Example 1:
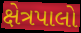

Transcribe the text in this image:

ક્ષેત્રપાલો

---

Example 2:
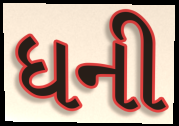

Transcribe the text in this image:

ધની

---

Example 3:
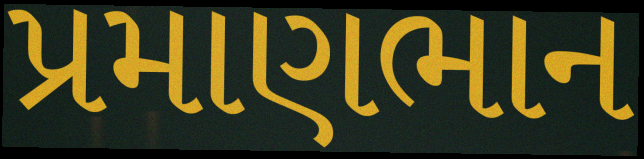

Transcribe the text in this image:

પ્રમાણભાન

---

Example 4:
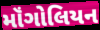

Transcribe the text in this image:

મૉંગોલિયન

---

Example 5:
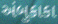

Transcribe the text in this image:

અંબુકાકા